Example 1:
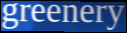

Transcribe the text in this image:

greenery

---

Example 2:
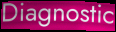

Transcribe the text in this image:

Diagnostic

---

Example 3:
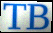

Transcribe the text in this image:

TB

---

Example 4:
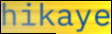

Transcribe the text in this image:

hikaye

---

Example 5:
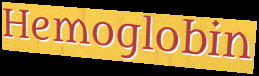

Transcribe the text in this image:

Hemoglobin